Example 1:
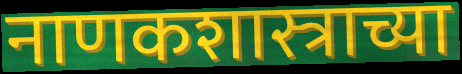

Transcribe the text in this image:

नाणकशास्त्राच्या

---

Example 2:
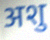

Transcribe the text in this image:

अशु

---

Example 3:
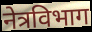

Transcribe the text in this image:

नेत्रविभाग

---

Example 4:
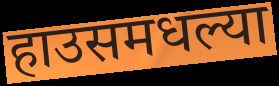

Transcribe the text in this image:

हाउसमधल्या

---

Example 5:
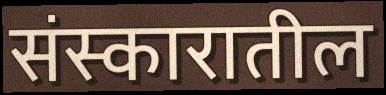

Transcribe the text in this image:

संस्कारातील